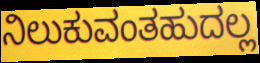
ನಿಲುಕುವಂತಹುದಲ್ಲ